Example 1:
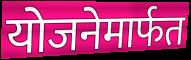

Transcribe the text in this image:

योजनेमार्फत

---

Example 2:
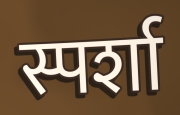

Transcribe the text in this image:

स्पर्शा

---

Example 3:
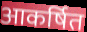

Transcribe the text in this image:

आकर्षित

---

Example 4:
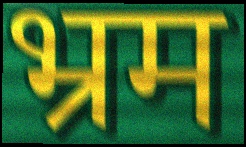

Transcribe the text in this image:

भ्रम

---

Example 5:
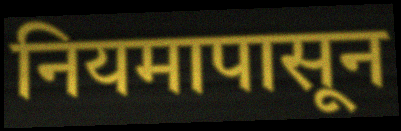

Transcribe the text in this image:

नियमापासून